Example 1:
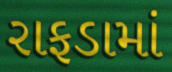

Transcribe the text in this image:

રાફડામાં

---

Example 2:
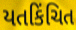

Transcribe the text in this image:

યતકિંચિત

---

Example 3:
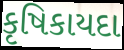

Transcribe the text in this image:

કૃષિકાયદા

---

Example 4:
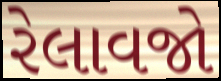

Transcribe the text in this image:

રેલાવજો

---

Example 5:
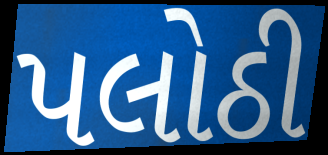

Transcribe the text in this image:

પલોઠી